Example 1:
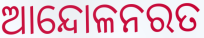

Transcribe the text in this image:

ଆନ୍ଦୋଳନରତ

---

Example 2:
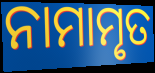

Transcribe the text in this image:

ନାମାମୃତ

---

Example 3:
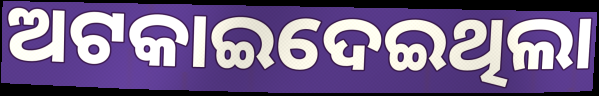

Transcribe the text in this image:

ଅଟକାଇଦେଇଥିଲା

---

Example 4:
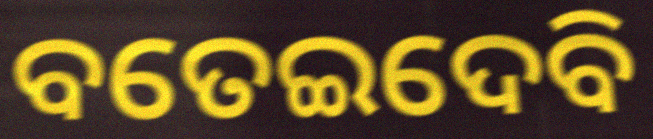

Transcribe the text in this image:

ବତେଇଦେବି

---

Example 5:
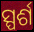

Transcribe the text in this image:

ସ୍ପର୍ଶ